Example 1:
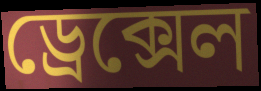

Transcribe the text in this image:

ড্রেক্সেল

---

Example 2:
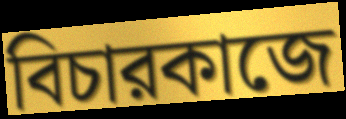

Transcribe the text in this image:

বিচারকাজে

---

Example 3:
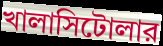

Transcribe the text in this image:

খালাসিটোলার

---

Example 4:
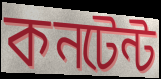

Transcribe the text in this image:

কনটেন্ট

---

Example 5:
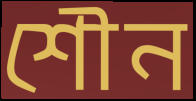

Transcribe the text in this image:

শৌন